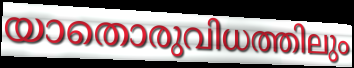
യാതൊരുവിധത്തിലും